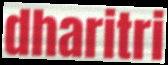
dharitri